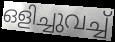
ഒളിച്ചുവച്ച്